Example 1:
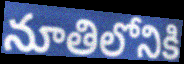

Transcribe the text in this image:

నూతిలోనికి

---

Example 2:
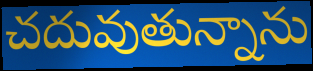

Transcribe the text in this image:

చదువుతున్నాను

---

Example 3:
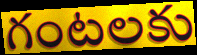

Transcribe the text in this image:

గంటలకు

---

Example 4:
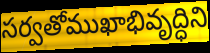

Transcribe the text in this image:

సర్వతోముఖాభివృద్ధిని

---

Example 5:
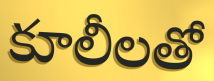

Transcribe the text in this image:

కూలీలతో